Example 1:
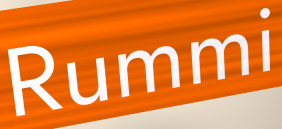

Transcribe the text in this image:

Rummi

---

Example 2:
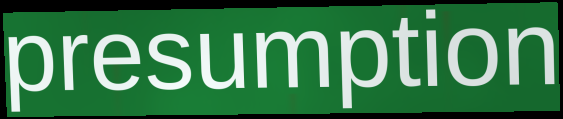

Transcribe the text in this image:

presumption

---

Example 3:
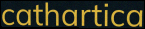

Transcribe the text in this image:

cathartica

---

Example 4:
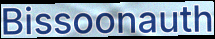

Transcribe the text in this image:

Bissoonauth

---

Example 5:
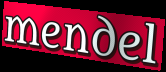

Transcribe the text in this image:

mendel